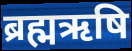
ब्रह्मऋषि